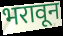
भरावून